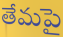
తేమపై